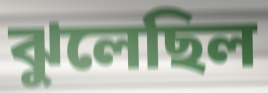
ঝুলেছিল